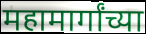
महामार्गांच्या